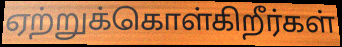
ஏற்றுக்கொள்கிறீர்கள்